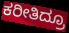
ಕರೀತಿದ್ರೂ